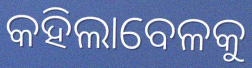
କହିଲାବେଳକୁ